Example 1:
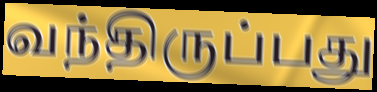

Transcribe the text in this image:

வந்திருப்பது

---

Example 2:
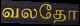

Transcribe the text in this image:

வலதோ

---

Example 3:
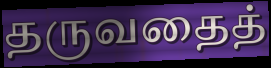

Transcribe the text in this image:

தருவதைத்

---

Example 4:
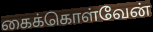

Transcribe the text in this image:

கைக்கொள்வேன்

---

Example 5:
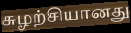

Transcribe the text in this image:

சுழற்சியானது